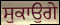
ਸੁਕਾਉਗੇ